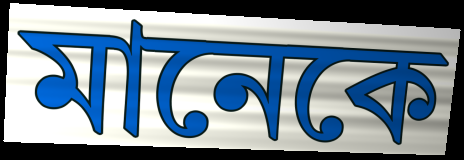
মানেকে